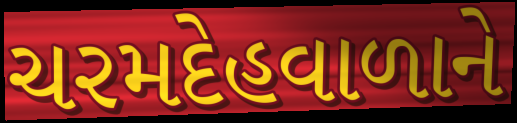
ચરમદેહવાળાને